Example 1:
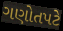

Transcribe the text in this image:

ગણોતપટે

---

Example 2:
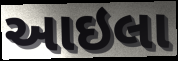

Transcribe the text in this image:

આઇલા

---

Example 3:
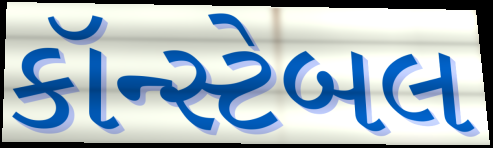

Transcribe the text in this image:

કૉન્સ્ટેબલ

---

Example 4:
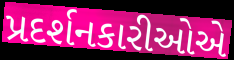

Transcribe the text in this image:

પ્રદર્શનકારીઓએ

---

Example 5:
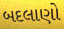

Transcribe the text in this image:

બદલાણો